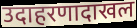
उदाहरणादाखल